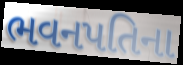
ભવનપતિના